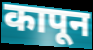
कापून